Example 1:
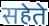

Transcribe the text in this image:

सहेते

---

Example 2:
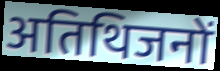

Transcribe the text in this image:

अतिथिजनों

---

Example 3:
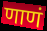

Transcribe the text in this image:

णाणं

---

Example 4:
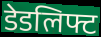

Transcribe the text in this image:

डेडलिफ्ट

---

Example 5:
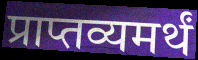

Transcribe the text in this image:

प्राप्तव्यमर्थं